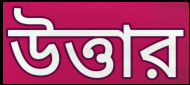
উত্তার